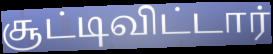
சூட்டிவிட்டார்